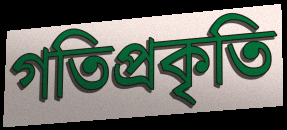
গতিপ্রকৃতি